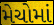
મેચોમાં